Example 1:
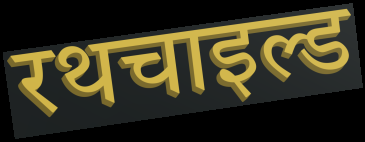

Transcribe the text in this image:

रथचाइल्ड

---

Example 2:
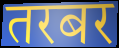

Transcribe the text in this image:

तरबर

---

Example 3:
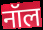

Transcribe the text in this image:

नॉल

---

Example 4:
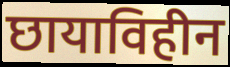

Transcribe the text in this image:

छायाविहीन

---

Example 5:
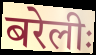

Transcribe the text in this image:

बरेलीः